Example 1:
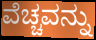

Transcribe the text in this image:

ವೆಚ್ಚವನ್ನು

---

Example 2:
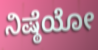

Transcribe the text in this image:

ನಿಷ್ಠೆಯೋ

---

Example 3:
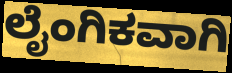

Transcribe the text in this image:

ಲೈಂಗಿಕವಾಗಿ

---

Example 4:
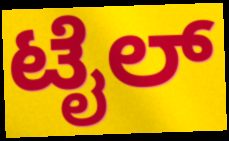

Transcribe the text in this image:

ಟೈಲ್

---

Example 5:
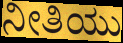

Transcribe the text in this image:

ನೀತಿಯು